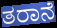
ತರಾನೆ